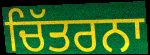
ਚਿੱਤਰਨਾ